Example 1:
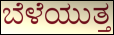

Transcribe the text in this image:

ಬೆಳೆಯುತ್ತ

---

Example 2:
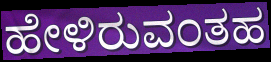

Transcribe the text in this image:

ಹೇಳಿರುವಂತಹ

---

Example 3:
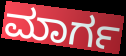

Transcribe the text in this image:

ಮಾರ್ಗ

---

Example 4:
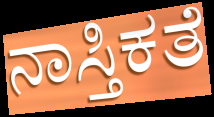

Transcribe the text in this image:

ನಾಸ್ತಿಕತೆ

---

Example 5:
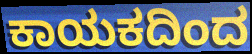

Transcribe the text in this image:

ಕಾಯಕದಿಂದ